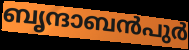
ബൃന്ദാബൻപുർ